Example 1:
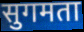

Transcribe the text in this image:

सुगमता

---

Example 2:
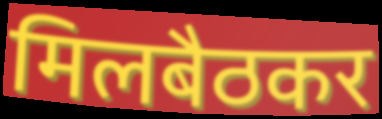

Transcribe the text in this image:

मिलबैठकर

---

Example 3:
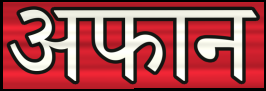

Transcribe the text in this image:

अफान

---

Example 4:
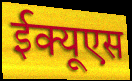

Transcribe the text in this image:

ईक्यूएस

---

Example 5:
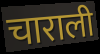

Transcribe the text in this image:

चाराली